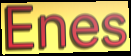
Enes